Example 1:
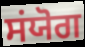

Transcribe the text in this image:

ਸਂਯੋਗ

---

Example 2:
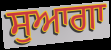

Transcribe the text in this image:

ਸੁਆਗਾ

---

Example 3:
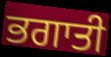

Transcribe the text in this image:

ਭਗਾਤੀ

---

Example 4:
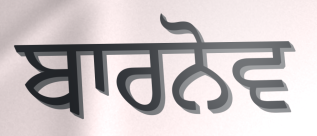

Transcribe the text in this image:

ਬਾਰਨੋਵ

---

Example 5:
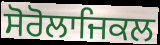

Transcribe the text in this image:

ਸੋਰੋਲਾਜਿਕਲ